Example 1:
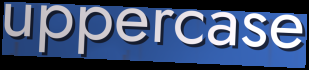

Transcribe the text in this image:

uppercase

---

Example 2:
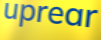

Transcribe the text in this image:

uprear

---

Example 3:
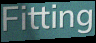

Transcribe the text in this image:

Fitting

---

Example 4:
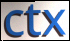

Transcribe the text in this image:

ctx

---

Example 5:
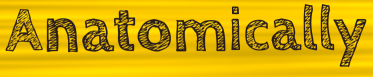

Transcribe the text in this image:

Anatomically